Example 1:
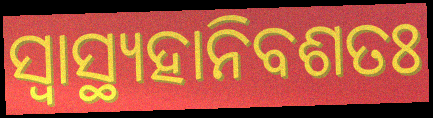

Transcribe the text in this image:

ସ୍ୱାସ୍ଥ୍ୟହାନିବଶତଃ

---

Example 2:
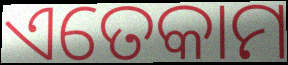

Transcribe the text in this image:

ଏତେକାମ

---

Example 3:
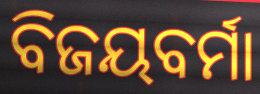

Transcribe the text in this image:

ବିଜୟବର୍ମା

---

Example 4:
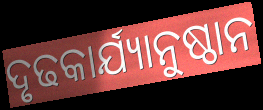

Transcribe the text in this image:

ଦୃଢକାର୍ଯ୍ୟାନୁଷ୍ଠାନ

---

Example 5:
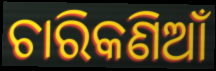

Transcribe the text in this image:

ଚାରିକଣିଆଁ